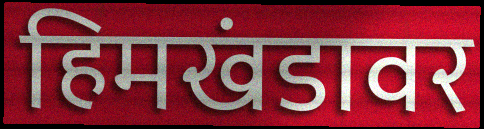
हिमखंडावर